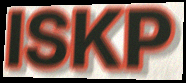
ISKP